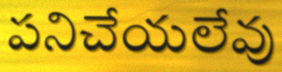
పనిచేయలేవు